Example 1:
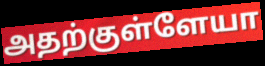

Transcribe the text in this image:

அதற்குள்ளேயா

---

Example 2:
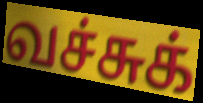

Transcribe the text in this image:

வச்சுக்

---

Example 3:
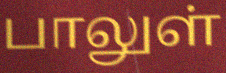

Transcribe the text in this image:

பாலுள்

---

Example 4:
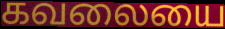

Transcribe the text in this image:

கவலையை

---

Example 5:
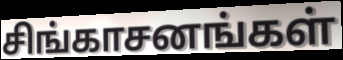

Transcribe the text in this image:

சிங்காசனங்கள்